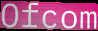
Ofcom